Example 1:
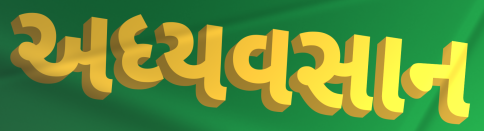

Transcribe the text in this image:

અધ્યવસાન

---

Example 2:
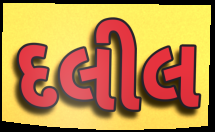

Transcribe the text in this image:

દલીલ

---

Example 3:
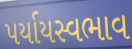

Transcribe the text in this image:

પર્યાયસ્વભાવ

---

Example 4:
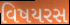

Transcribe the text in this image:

વિષયરસ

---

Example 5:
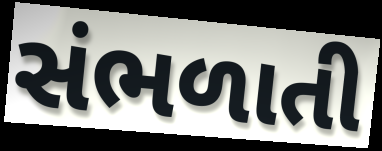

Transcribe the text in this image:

સંભળાતી